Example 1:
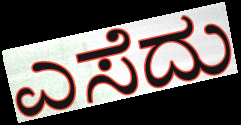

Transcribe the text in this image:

ಎಸೆದು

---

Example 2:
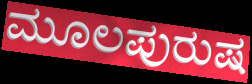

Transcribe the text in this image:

ಮೂಲಪುರುಷ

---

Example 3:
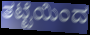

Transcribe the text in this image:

ತಟ್ಟೆಯಿಂದ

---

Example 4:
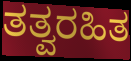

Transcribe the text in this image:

ತತ್ವರಹಿತ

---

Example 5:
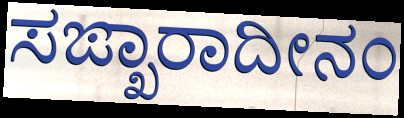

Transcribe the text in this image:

ಸಙ್ಖಾರಾದೀನಂ